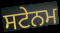
ਸਟੇਨਮ